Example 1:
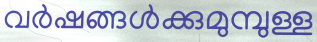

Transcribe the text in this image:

വർഷങ്ങൾക്കുമുമ്പുള്ള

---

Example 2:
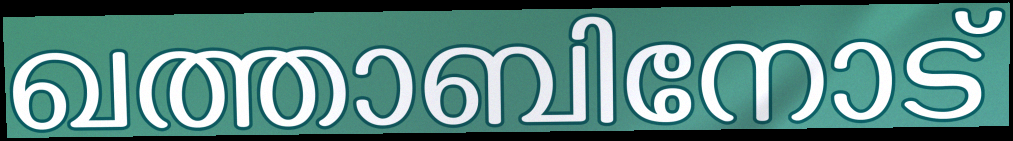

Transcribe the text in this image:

ഖത്താബിനോട്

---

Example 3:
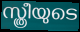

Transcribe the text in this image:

സ്ത്രീയുടെ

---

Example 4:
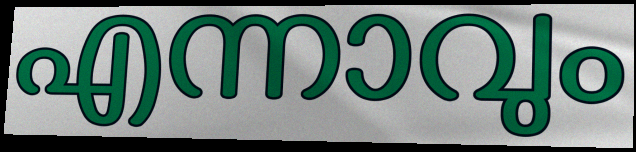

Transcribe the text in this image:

എന്നാവും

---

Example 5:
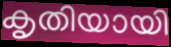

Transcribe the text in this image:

കൃതിയായി